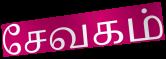
சேவகம்